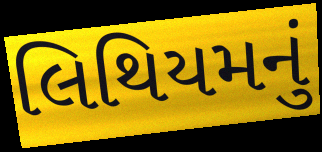
લિથિયમનું